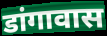
डांगावास